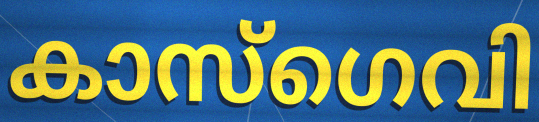
കാസ്ഗെവി